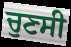
ਚੁਣਸੀ